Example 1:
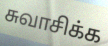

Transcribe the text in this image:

சுவாசிக்க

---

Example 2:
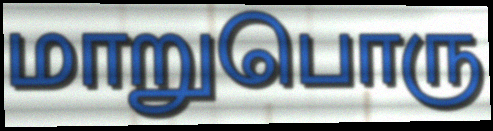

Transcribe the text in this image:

மாறுபொரு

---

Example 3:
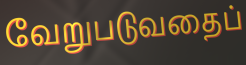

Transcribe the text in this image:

வேறுபடுவதைப்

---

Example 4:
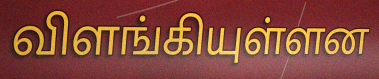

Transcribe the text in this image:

விளங்கியுள்ளன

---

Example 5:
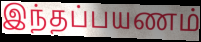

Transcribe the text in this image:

இந்தப்பயணம்